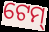
ଟେମ୍